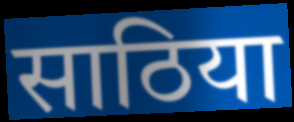
साठिया